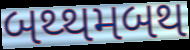
બથ્થમબથ